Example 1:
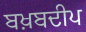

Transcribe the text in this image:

ਬਖ਼ਬਦੀਪ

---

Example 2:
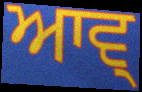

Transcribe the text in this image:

ਆਵ੍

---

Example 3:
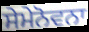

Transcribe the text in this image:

ਸੇਮੇਨੋਵਨਾ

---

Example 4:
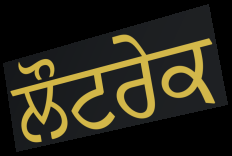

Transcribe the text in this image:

ਲੌਟਰੇਕ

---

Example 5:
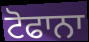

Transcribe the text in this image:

ਟੋਫਾਨਾ